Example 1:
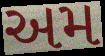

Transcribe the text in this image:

અમ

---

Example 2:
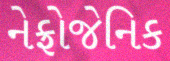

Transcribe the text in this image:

નેફ્રોજેનિક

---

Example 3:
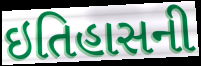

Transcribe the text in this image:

ઇતિહાસની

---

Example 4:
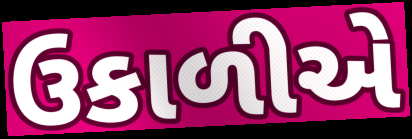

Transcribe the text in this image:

ઉકાળીએ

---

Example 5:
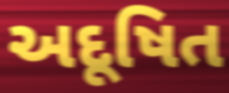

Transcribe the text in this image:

અદૂષિત